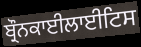
ਬ੍ਰੌਨਕਾਈਲਾਈਟਿਸ